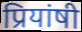
प्रियांषी